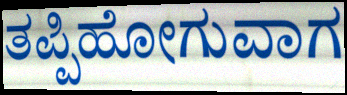
ತಪ್ಪಿಹೋಗುವಾಗ